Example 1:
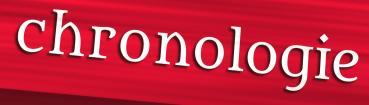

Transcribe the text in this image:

chronologie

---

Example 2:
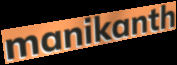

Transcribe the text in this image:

manikanth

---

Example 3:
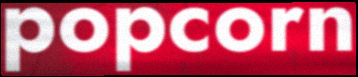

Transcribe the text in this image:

popcorn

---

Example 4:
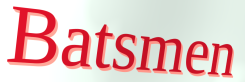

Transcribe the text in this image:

Batsmen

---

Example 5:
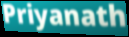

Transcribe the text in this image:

Priyanath